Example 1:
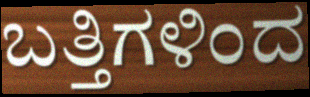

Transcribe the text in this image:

ಬತ್ತಿಗಳಿಂದ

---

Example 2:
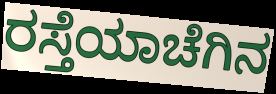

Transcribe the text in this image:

ರಸ್ತೆಯಾಚೆಗಿನ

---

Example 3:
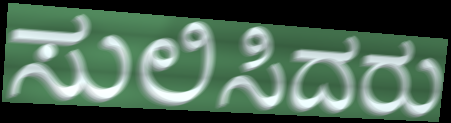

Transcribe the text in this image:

ಸುಲಿಸಿದರು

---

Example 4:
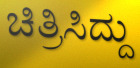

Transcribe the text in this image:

ಚಿತ್ರಿಸಿದ್ದು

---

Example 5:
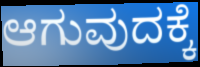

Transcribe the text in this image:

ಆಗುವುದಕ್ಕೆ